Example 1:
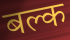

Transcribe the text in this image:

बल्क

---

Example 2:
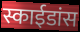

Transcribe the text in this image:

स्काईडांस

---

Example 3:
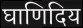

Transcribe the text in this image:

घाणिदिय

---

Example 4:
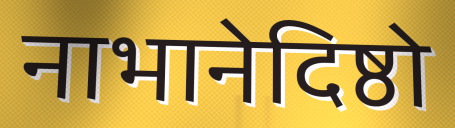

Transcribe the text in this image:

नाभानेदिष्ठो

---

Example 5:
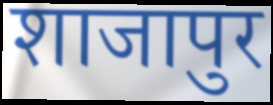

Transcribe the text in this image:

शाजापुर